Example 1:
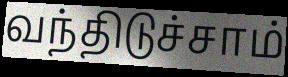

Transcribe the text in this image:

வந்திடுச்சாம்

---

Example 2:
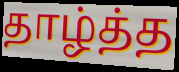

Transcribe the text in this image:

தாழ்த்த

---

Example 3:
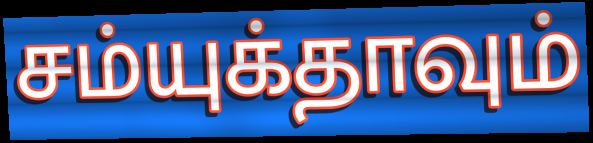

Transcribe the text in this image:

சம்யுக்தாவும்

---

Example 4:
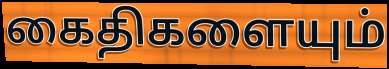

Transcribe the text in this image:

கைதிகளையும்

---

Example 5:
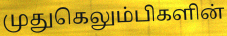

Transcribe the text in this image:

முதுகெலும்பிகளின்